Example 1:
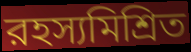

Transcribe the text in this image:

রহস্যমিশ্রিত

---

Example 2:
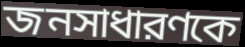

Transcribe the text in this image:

জনসাধারণকে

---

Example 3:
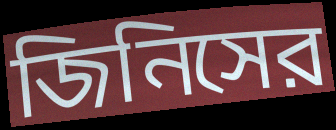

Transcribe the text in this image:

জিনিসের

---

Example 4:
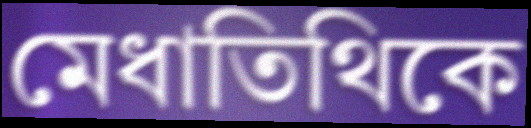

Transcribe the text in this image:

মেধাতিথিকে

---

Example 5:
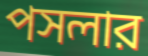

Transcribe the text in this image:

পসলার